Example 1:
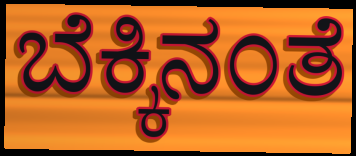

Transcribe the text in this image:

ಬೆಕ್ಕಿನಂತೆ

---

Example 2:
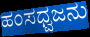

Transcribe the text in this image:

ಹಂಸಧ್ವಜನು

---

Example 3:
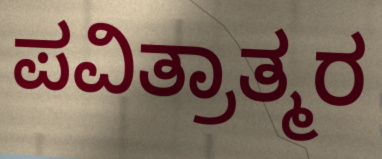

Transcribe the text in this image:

ಪವಿತ್ರಾತ್ಮರ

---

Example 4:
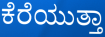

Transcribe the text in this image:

ಕೆರೆಯುತ್ತಾ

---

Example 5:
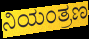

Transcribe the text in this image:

ನಿಯಂತ್ರಣ